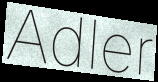
Adler